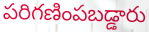
పరిగణింపబడ్డారు